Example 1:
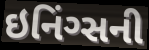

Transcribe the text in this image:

ઇનિંગ્સની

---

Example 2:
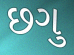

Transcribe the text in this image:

છગુ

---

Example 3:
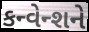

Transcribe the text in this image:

કન્વેન્શને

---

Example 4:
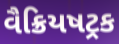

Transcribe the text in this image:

વૈક્રિયષટ્રક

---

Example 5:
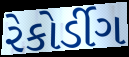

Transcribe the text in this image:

રેકોર્ડીગ